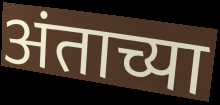
अंताच्या